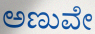
ಅಣುವೇ